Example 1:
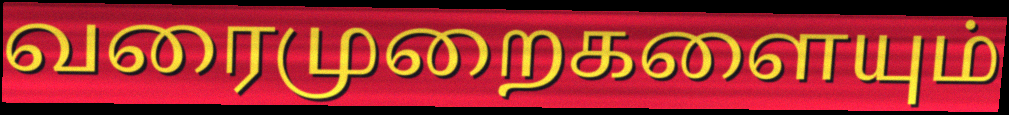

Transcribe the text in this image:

வரைமுறைகளையும்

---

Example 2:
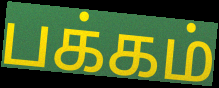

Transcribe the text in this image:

பக்கம்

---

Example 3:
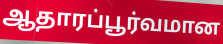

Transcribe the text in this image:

ஆதாரப்பூர்வமான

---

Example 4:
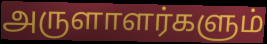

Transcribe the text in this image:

அருளாளர்களும்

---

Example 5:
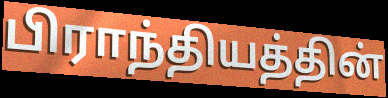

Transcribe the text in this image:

பிராந்தியத்தின்